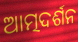
ଆତ୍ମଦର୍ଶନ